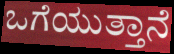
ಒಗೆಯುತ್ತಾನೆ